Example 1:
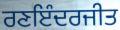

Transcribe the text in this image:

ਰਣਇੰਦਰਜੀਤ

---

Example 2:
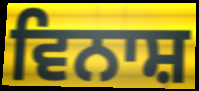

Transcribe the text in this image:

ਵਿਨਾਸ਼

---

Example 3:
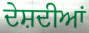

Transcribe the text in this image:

ਦੇਸ਼ਦੀਆਂ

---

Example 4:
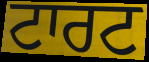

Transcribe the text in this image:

ਟਾਰਟ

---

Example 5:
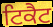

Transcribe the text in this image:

ਟਿਕੈਟ